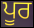
ਪੂਰ